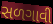
સળગાવી